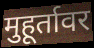
मुहूर्तावर